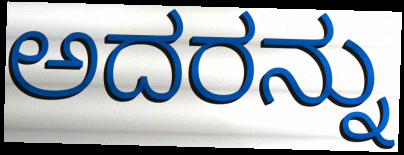
ಅದರನ್ನು